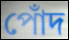
পোঁদ